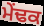
ਮੇਂਢਕ